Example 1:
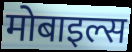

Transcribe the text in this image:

मोबाइल्स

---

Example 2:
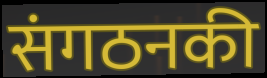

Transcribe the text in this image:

संगठनकी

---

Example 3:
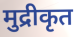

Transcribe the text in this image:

मुद्रीकृत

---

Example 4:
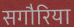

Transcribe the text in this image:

सगौरिया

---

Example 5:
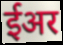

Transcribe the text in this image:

ईअर